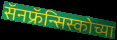
सॅनफ्रॅन्सिस्कोच्या